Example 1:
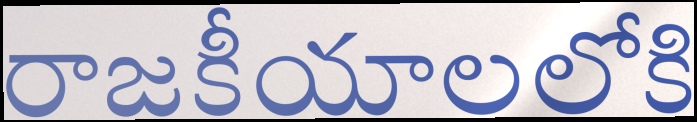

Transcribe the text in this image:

రాజకీయాలలోకి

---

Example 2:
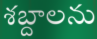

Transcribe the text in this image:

శబ్దాలను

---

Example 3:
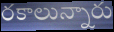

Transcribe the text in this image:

రకాలున్నారు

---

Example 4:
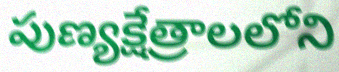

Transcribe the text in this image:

పుణ్యక్షేత్రాలలోని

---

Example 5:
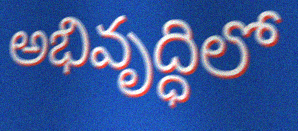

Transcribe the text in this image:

అభివృద్ధిలో